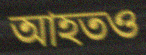
আহতও